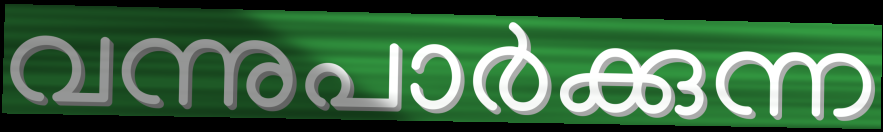
വന്നുപാർക്കുന്ന